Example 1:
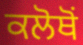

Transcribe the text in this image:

ਕਲੋਥੋਂ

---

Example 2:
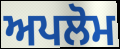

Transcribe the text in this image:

ਅਪਲੋਮ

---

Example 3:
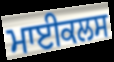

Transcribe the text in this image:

ਮਾਈਕਲਸ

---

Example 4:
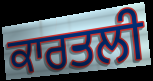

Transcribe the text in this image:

ਕਾਰਤਲੀ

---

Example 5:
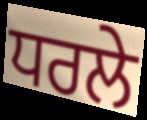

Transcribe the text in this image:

ਧਰਲੇ